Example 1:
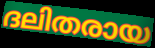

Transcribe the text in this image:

ദലിതരായ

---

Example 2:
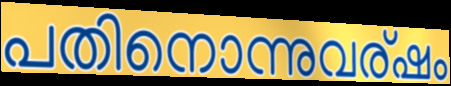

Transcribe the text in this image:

പതിനൊന്നുവര്ഷം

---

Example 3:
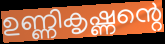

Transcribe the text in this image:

ഉണ്ണികൃഷ്ണന്റെ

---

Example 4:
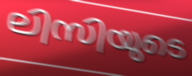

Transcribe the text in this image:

ലിസിയുടെ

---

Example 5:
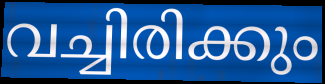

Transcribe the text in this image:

വച്ചിരിക്കും